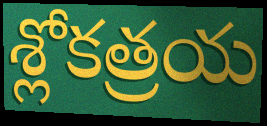
శ్లోకత్రయ